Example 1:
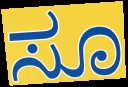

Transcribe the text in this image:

ಸೂ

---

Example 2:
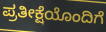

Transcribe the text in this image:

ಪ್ರತೀಕ್ಷೆಯೊಂದಿಗೆ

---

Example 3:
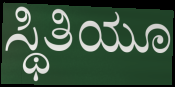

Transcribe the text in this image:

ಸ್ಥಿತಿಯೂ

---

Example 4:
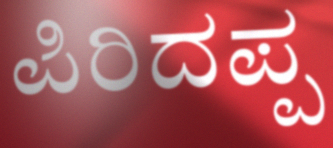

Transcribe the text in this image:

ಪಿರಿದಪ್ಪ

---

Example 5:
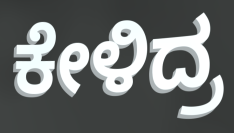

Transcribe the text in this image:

ಕೇಳಿದ್ರ